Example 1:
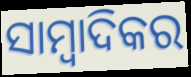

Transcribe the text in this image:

ସାମ୍ବାଦିକର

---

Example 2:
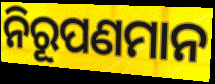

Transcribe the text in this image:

ନିରୂପଣମାନ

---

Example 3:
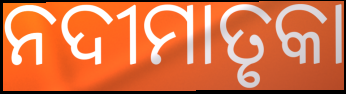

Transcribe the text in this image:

ନଦୀମାତୃକା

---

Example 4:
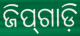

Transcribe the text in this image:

ଜିପ୍‌ଗାଡ଼ି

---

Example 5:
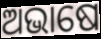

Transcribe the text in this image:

ଅଭାଷେ